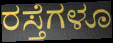
ರಸ್ತೆಗಳೂ